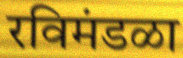
रविमंडळा